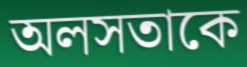
অলসতাকে